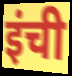
इंची